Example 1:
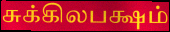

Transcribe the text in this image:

சுக்கிலபக்ஷம்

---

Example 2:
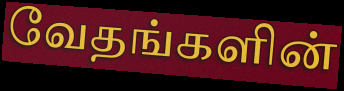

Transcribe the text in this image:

வேதங்களின்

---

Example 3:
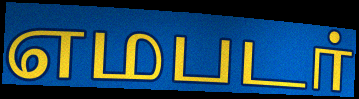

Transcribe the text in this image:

எமபடர்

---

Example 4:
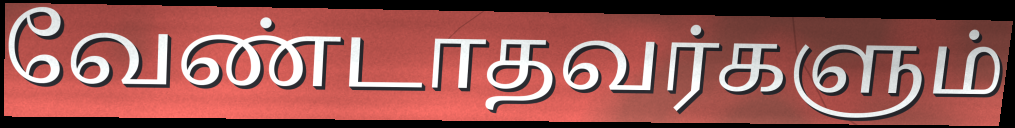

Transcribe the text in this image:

வேண்டாதவர்களும்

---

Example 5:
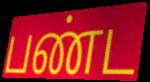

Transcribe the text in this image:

பண்ட